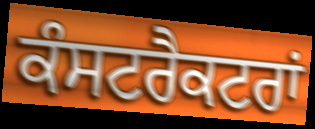
ਕੰਸਟਰੈਕਟਰਾਂ